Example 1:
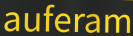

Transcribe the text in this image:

auferam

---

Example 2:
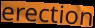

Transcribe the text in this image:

erection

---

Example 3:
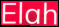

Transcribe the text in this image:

Elah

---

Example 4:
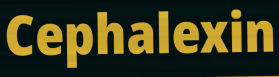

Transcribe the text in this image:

Cephalexin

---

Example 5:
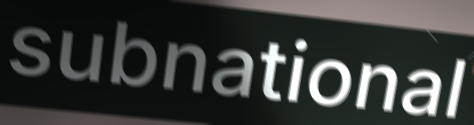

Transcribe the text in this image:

subnational